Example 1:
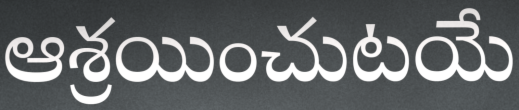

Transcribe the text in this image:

ఆశ్రయించుటయే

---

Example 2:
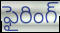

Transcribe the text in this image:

ఫైరింగ్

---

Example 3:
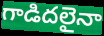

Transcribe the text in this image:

గాడిదలైనా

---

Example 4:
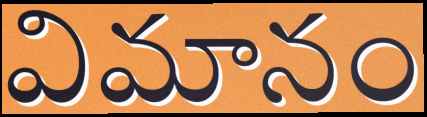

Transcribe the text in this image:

విమానం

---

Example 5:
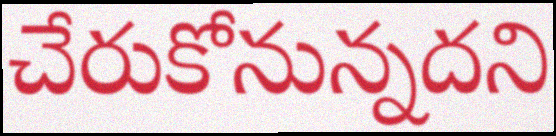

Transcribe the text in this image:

చేరుకోనున్నదని